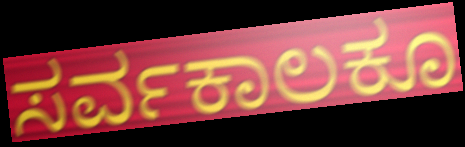
ಸರ್ವಕಾಲಕೂ